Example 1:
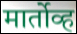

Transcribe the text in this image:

मार्तोव्ह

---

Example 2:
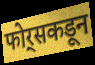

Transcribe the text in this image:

फोर्सकडून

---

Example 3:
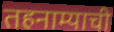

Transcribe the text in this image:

तहनाम्याची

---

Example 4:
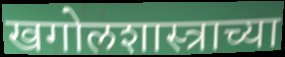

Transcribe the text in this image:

खगोलशास्त्राच्या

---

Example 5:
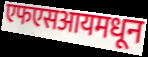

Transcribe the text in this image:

एफएसआयमधून